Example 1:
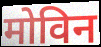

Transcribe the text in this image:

मोविन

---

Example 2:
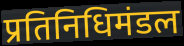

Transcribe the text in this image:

प्रतिनिधिमंडल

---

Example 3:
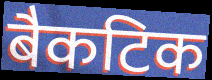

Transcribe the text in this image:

बैकटिक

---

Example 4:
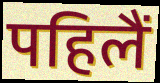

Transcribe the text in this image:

पहिलैं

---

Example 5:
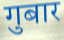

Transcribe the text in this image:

गुबार